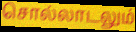
சொல்லாடலும்